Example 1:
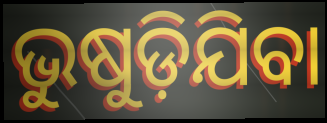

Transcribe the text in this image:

ଭୁଷୁଡ଼ିଯିବା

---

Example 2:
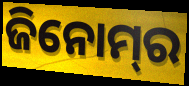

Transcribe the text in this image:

ଜିନୋମ୍‌ର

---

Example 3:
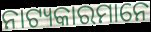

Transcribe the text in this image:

ନାଟ୍ୟକାରମାନେ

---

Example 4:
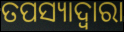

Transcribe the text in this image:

ତପସ୍ୟାଦ୍ୱାରା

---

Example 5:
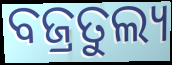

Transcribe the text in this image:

ବଜ୍ରତୁଲ୍ୟ